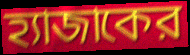
হ্যাজাকের